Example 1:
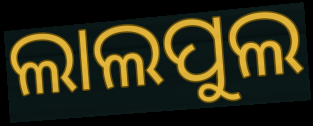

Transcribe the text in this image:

ଲାଲପୁଲ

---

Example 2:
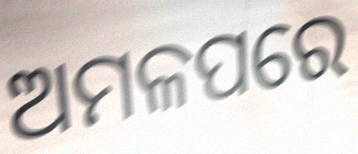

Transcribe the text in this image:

ଅମଳପରେ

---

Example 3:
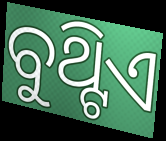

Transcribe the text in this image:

ବୁଥ୍ଟିଏ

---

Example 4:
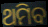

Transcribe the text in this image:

ଥମିବ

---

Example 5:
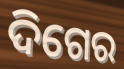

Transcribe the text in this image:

ଦିଗେର